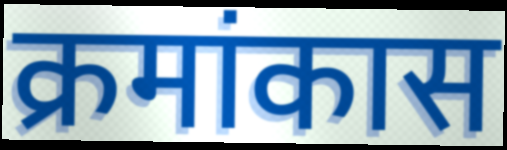
क्रमांकास